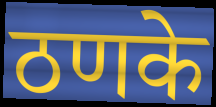
ठणके